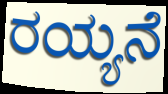
ರಯ್ಯನೆ